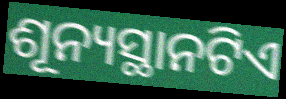
ଶୂନ୍ୟସ୍ଥାନଟିଏ